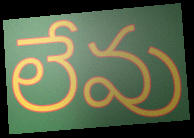
లేవు